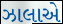
ઝાલાએ